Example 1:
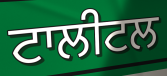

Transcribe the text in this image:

ਟਾਲੀਟਲ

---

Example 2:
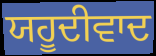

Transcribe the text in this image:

ਯਹੂਦੀਵਾਦ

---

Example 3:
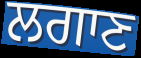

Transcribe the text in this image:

ਲਗਾਣ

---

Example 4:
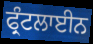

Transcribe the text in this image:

ਫ੍ਰੰਟਲਾਈਨ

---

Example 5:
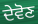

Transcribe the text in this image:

ਦੇਵੋਣ